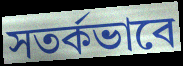
সতর্কভাবে